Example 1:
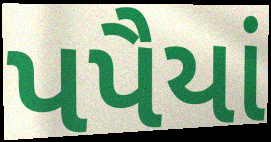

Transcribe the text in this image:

પપૈયાં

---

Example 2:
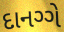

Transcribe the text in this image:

દાનગ્ગે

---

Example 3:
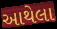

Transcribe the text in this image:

આથેલા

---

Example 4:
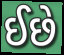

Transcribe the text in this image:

ઈછે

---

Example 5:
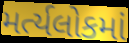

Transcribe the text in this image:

મર્ત્યલોકમાં